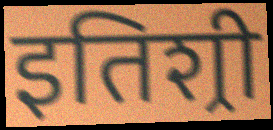
इतिश्री